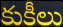
కుకీలు